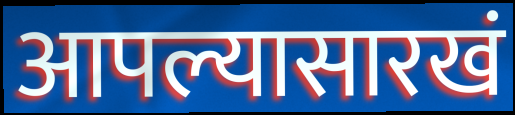
आपल्यासारखं